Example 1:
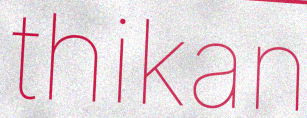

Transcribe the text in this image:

thikan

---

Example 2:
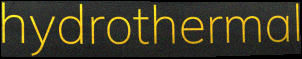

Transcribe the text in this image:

hydrothermal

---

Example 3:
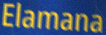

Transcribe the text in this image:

Elamana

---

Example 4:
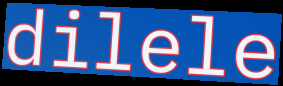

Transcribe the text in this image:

dilele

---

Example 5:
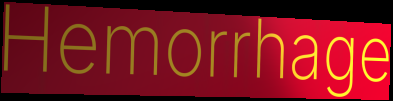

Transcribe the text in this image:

Hemorrhage